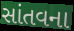
સાંતવના